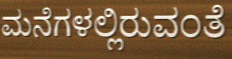
ಮನೆಗಳಲ್ಲಿರುವಂತೆ